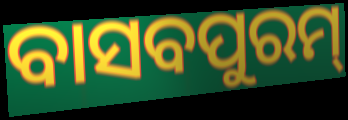
ବାସବପୁରମ୍